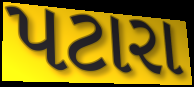
પટારા